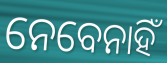
ନେବେନାହିଁ